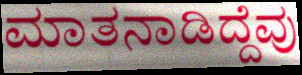
ಮಾತನಾಡಿದ್ದೆವು